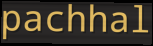
pachhal